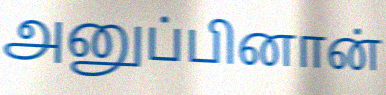
அனுப்பினான்